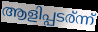
ആളിപ്പടര്ന്ന്